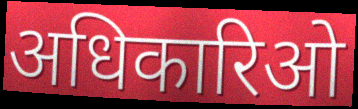
अधिकारिओ